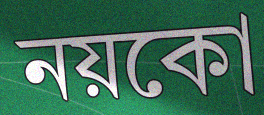
নয়কো